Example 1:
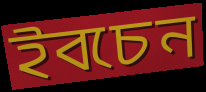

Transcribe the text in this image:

ইবচেন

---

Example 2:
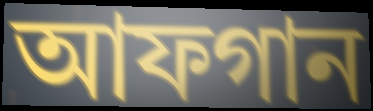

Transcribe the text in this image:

আফগান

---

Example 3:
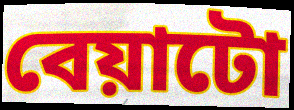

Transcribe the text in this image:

বেয়াটো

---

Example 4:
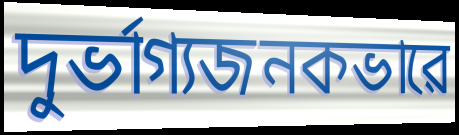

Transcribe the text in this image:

দুৰ্ভাগ্যজনকভাৱে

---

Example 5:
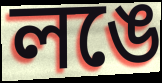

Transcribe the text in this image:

লঙে